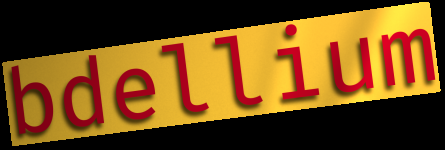
bdellium